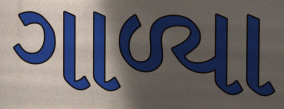
ગાળ્યા